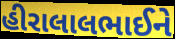
હીરાલાલભાઈને